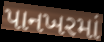
પાનખરમાં